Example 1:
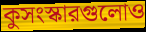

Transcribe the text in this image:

কুসংস্কারগুলোও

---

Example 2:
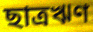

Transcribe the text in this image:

ছাত্রঋণ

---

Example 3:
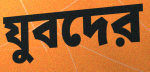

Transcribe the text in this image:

যুবদের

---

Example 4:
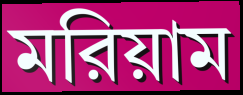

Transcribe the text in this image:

মরিয়াম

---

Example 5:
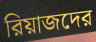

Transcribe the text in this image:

রিয়াজদের